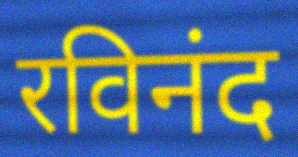
रविनंद